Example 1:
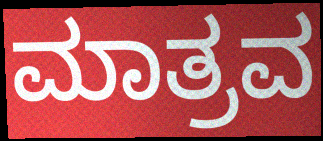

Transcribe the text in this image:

ಮಾತ್ರವ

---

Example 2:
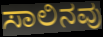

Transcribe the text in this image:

ಸಾಲಿನವು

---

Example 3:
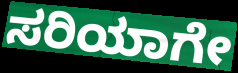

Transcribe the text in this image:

ಸರಿಯಾಗೇ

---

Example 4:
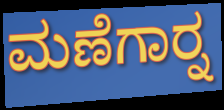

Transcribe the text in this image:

ಮಣೆಗಾರ್‍ನ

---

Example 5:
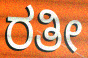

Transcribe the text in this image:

ರತೀ